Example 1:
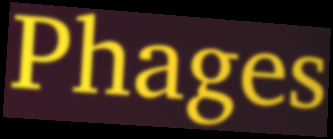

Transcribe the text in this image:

Phages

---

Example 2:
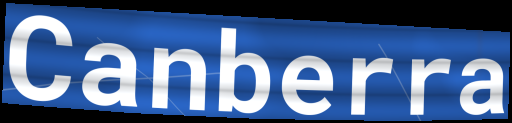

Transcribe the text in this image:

Canberra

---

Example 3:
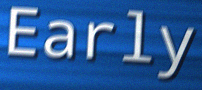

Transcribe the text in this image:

Early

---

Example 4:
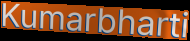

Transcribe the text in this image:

Kumarbharti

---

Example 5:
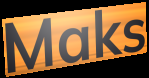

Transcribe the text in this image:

Maks